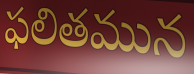
ఫలితమున